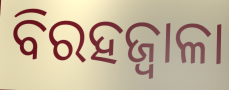
ବିରହଜ୍ୱାଳା